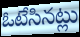
ఓటేసినట్లు